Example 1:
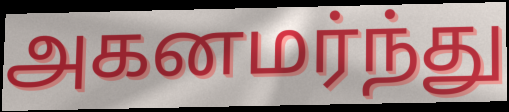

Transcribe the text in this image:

அகனமர்ந்து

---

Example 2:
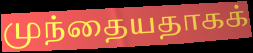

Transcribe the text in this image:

முந்தையதாகக்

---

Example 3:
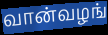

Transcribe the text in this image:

வான்வழங்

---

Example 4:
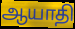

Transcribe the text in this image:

ஆயாதி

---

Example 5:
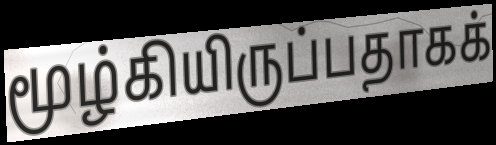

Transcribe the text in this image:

மூழ்கியிருப்பதாகக்